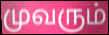
முவரும்